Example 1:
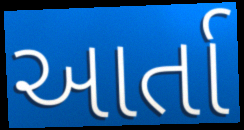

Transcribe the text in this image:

આર્તા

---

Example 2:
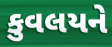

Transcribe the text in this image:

કુવલયને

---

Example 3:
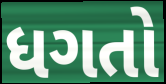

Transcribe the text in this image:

ધગતો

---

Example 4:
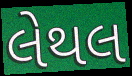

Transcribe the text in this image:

લેથલ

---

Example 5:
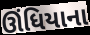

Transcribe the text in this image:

ઊંધિયાના